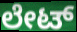
ಲೇಟ್